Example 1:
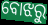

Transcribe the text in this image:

ବୋଝରୁ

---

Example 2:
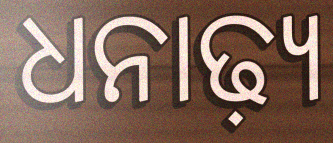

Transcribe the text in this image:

ଧନାଢ଼୍ୟ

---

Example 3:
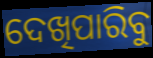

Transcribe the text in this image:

ଦେଖିପାରିବୁ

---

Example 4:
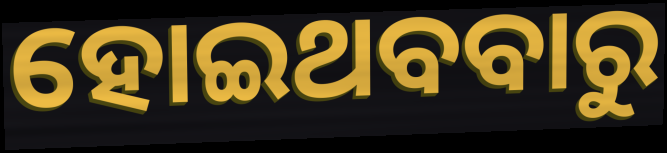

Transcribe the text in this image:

ହୋଇଥବବାରୁ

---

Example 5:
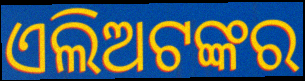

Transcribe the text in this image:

ଏଲିଅଟଙ୍କର